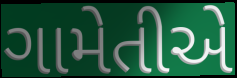
ગામેતીએ